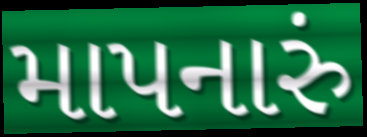
માપનારું